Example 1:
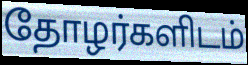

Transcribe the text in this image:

தோழர்களிடம்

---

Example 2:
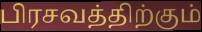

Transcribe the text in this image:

பிரசவத்திற்கும்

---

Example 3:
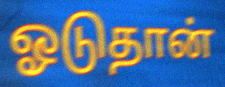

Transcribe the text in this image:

ஓடுதான்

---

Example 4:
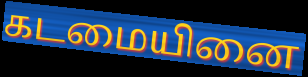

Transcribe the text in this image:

கடமையினை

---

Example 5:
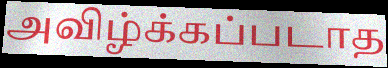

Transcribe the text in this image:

அவிழ்க்கப்படாத